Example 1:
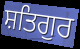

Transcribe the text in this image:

ਸ਼ਤਿਗੁਰ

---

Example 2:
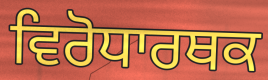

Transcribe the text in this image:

ਵਿਰੋਧਾਰਥਕ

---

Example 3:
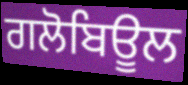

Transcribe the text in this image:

ਗਲੋਬਿਊਲ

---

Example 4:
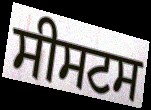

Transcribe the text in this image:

ਸੀਸਟਸ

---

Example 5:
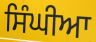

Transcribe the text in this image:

ਸਿੰਘੀਆ